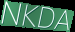
NKDA